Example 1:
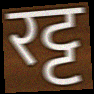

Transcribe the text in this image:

रट्ट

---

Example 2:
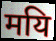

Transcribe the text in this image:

मयि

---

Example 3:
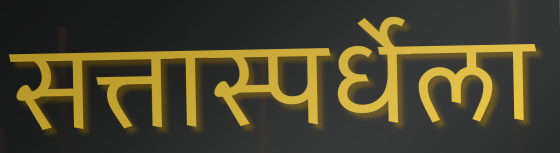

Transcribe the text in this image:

सत्तास्पर्धेला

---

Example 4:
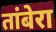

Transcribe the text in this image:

तांबेरा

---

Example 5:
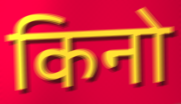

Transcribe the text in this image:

किनो